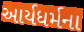
આર્યધર્મના